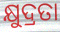
କ୍ଷୁଦ୍ରତା